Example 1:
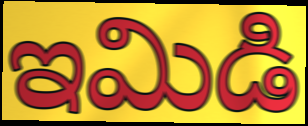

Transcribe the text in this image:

ఇమిడి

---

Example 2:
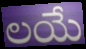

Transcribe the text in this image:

లయే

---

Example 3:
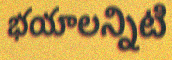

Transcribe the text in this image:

భయాలన్నిటి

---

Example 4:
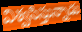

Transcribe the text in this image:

విశ్వసిస్తున్నాడు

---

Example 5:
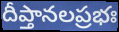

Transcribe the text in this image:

దీప్తానలప్రభః